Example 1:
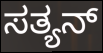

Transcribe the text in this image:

ಸತ್ಯನ್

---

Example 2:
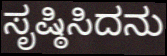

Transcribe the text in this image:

ಸೃಷ್ಠಿಸಿದನು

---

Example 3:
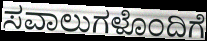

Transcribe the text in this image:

ಸವಾಲುಗಳೊಂದಿಗೆ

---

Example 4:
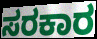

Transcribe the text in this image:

ಸರಕಾರ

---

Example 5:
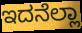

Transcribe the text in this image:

ಇದನೆಲ್ಲಾ